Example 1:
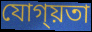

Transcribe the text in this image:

যোগ্য়তা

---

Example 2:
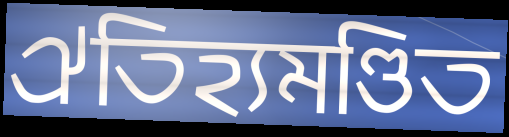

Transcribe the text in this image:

ঐতিহ্যমণ্ডিত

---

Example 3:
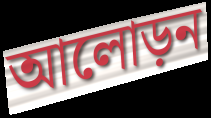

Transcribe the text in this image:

আলোড়ন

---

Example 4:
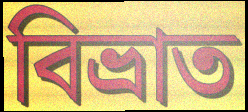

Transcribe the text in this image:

বিভ্ৰাত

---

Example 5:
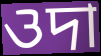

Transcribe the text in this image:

ওদা